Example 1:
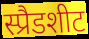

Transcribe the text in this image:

स्प्रैडशीट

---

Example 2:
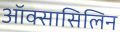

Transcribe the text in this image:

ऑक्सासिलिन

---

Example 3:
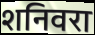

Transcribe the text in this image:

शनिवरा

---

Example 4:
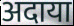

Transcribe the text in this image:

अदाया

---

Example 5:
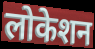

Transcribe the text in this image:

लोकेशन